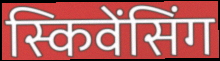
स्किवेंसिंग